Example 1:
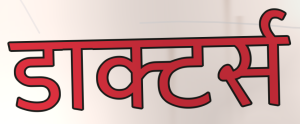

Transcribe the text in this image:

डाक्टर्स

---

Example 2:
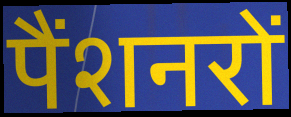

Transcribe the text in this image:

पैंशनरों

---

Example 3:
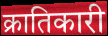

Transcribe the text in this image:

क्रातिकारी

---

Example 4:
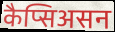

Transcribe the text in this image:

कैप्सिअसन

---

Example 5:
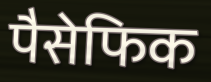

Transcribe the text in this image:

पैसेफिक